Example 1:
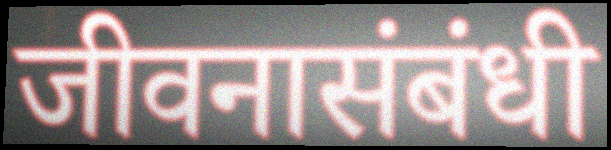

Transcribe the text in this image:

जीवनासंबंधी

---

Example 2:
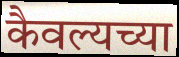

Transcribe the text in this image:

कैवल्यच्या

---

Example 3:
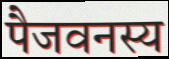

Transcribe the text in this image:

पैजवनस्य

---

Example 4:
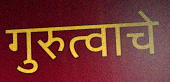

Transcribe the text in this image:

गुरुत्वाचे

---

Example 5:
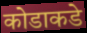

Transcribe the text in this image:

कोडाकडे